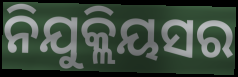
ନିଯୁକ୍ଲିୟସର